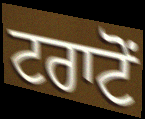
ਟਰਾਟੋਂ